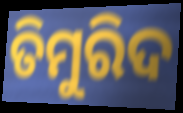
ତିମୁରିଦ